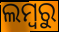
ଲମ୍ବରୁ